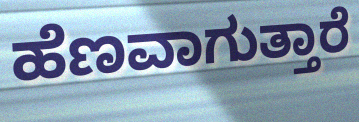
ಹೆಣವಾಗುತ್ತಾರೆ